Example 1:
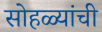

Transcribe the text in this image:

सोहळ्यांची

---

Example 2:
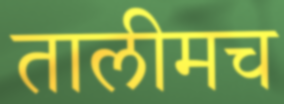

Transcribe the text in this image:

तालीमच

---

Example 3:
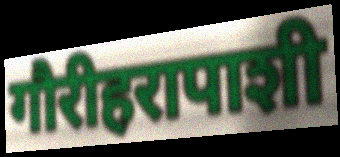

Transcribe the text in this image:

गौरीहरापाशी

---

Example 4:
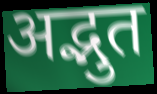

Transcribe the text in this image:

अद्भुत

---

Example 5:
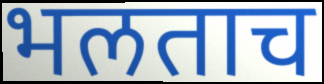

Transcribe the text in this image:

भलताच